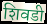
शिवडी